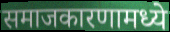
समाजकारणामध्ये